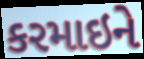
કરમાઇને